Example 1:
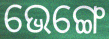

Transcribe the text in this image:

ଭେଙ୍ଗେ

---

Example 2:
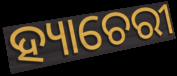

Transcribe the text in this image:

ହ୍ୟାଚେରୀ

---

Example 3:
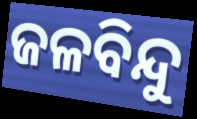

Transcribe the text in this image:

ଜଳବିନ୍ଦୁ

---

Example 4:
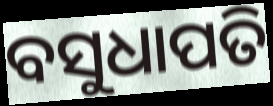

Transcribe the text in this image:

ବସୁଧାପତି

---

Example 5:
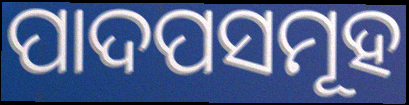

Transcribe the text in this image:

ପାଦପସମୂହ